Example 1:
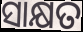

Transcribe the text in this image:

ସାକ୍ଷତ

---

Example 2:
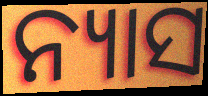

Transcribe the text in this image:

ନ୍ୟାସ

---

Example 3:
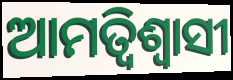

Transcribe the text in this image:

ଆମତ୍ବିଶ୍ୱାସୀ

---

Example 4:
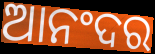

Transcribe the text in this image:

ଆନଂଦର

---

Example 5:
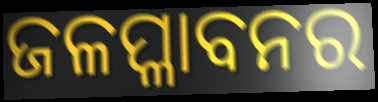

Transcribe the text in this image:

ଜଳପ୍ଳାବନର